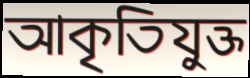
আকৃতিযুক্ত